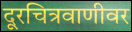
दूरचित्रवाणीवर